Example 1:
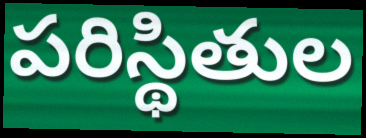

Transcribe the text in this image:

పరిస్థితుల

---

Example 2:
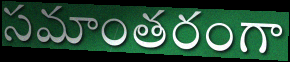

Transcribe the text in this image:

సమాంతరంగా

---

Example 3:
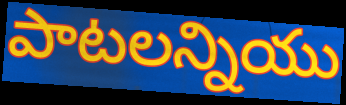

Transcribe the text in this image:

పాటలన్నియు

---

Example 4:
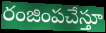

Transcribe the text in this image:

రంజింపచేస్తూ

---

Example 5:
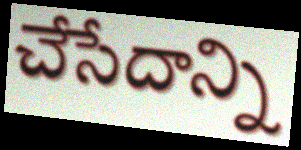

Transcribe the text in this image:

చేసేదాన్ని